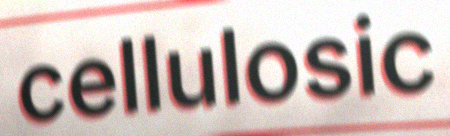
cellulosic